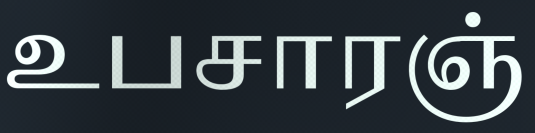
உபசாரஞ்